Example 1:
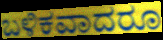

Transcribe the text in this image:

ಬಳಿಕವಾದರೂ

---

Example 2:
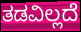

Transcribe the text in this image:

ತಡವಿಲ್ಲದೆ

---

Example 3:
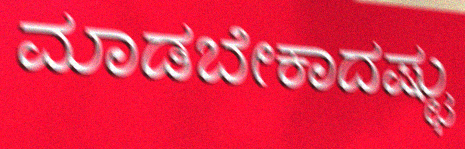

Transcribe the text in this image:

ಮಾಡಬೇಕಾದಷ್ಟು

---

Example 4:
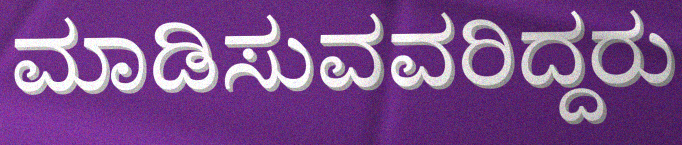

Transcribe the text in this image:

ಮಾಡಿಸುವವರಿದ್ದರು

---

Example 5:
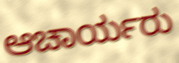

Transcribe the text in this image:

ಆಚಾರ್ಯರು